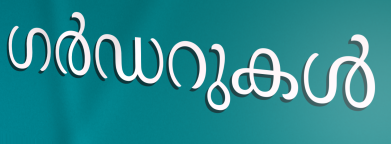
ഗർഡറുകൾ